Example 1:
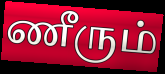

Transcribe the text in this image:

ணீரும்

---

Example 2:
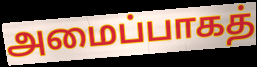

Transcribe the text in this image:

அமைப்பாகத்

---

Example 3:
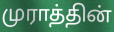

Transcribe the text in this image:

முராத்தின்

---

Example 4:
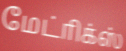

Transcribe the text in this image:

மேட்ரிக்ஸ்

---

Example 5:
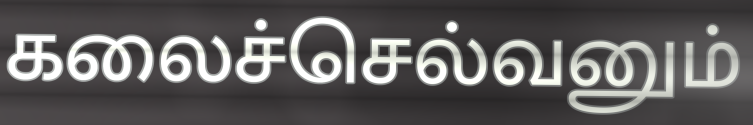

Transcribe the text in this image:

கலைச்செல்வனும்